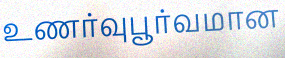
உணர்வுபூர்வமான